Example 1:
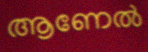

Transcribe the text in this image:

ആണേൽ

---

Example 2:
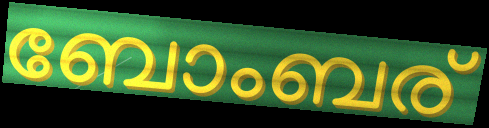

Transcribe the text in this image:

ബോംബര്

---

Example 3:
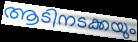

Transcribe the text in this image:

ആടിനടക്കയും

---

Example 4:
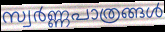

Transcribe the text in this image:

സ്വർണ്ണപാത്രങ്ങൾ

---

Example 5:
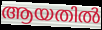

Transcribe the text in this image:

ആയതിൽ